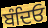
ਬੰਦਿਓ